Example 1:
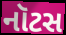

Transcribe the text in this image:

નૉટસ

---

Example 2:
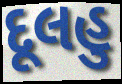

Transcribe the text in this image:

દૂલહુ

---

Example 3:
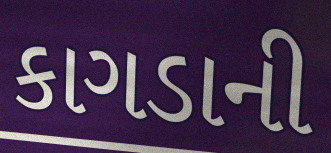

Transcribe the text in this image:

કાગડાની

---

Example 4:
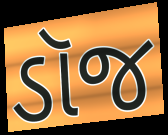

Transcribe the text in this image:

ડૉજ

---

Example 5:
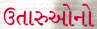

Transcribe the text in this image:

ઉતારુઓનો